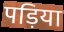
पड़िया